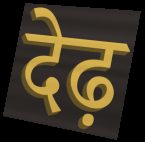
देढ़